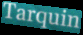
Tarquin